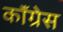
कॉंग्रेस